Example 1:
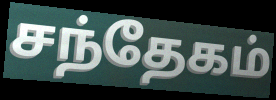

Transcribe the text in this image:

சந்தேகம்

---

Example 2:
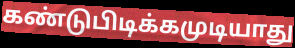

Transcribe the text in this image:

கண்டுபிடிக்கமுடியாது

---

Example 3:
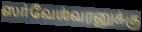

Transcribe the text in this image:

ஸர்வேஶ்வரனுக்கு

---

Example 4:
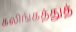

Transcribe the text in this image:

கலிங்கத்துத்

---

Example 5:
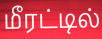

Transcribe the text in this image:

மீரட்டில்